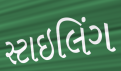
સ્ટાઇલિંગ